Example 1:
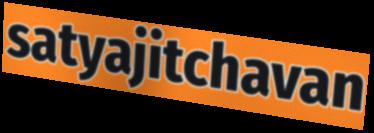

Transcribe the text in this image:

satyajitchavan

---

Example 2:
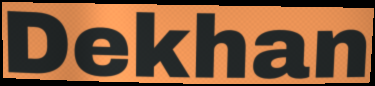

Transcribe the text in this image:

Dekhan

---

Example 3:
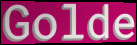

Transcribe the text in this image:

Golde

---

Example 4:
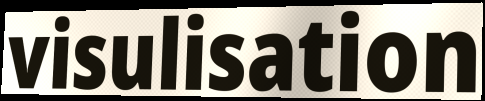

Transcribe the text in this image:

visulisation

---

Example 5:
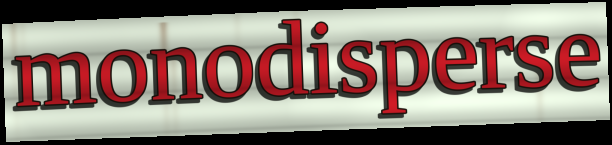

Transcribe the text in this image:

monodisperse